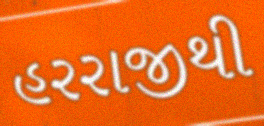
હરરાજીથી